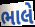
ભાલે